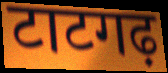
टाटगढ़